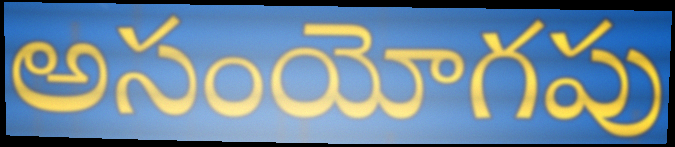
అసంయోగపు